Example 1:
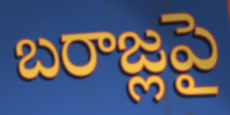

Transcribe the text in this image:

బరాజ్లపై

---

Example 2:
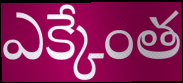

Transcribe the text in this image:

ఎక్కేంత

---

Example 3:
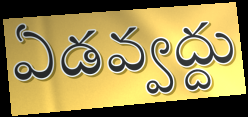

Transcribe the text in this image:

ఏడవ్వద్దు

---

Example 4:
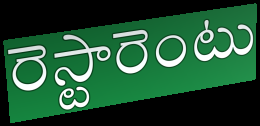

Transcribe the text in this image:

రెస్టారెంటు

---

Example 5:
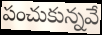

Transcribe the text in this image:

పంచుకున్నవే